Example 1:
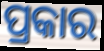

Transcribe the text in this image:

ପ୍ରକାର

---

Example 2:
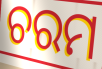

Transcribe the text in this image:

ଚରମ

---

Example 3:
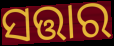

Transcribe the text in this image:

ସତ୍ତାର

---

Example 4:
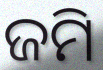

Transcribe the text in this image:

ଜମି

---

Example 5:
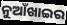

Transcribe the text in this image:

ନୁଆଁଖାଇର